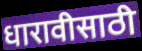
धारावीसाठी